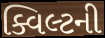
ક્વિલ્ટની